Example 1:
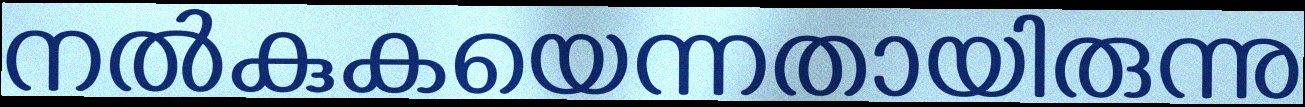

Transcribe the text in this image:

നൽകുകയെന്നതായിരുന്നു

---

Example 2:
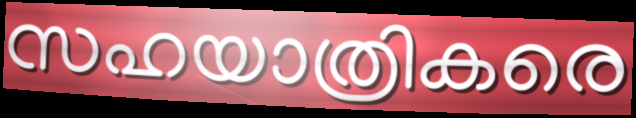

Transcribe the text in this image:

സഹയാത്രികരെ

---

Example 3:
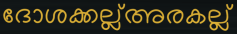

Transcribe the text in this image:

ദോശക്കല്ല്അരകല്ല്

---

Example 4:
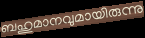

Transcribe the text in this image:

ബഹുമാനവുമായിരുന്നു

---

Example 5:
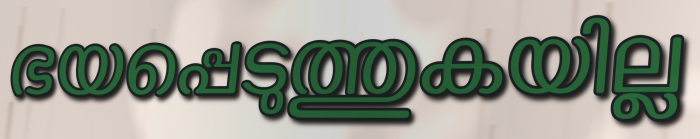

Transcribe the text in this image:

ഭയപ്പെടുത്തുകയില്ല